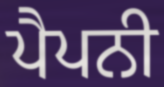
ਪੈਪਨੀ